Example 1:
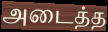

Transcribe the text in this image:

அடைத்த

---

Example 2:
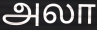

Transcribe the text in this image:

அலா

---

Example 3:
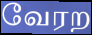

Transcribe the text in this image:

வேரற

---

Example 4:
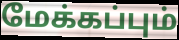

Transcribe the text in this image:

மேக்கப்பும்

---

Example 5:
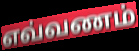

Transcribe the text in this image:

எவ்வணம்